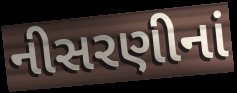
નીસરણીનાં